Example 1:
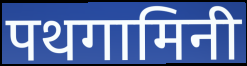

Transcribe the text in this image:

पथगामिनी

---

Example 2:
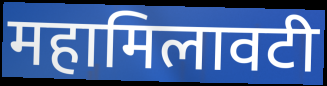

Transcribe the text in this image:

महामिलावटी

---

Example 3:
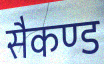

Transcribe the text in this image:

सैकण्ड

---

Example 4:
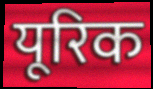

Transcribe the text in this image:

यूरिक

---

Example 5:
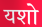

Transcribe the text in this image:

यशो